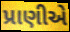
પ્રાણીએ